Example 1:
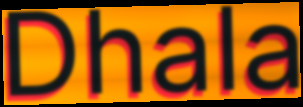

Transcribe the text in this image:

Dhala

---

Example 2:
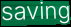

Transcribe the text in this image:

saving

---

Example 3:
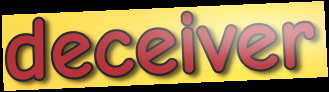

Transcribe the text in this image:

deceiver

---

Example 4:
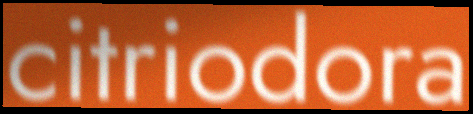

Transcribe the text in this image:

citriodora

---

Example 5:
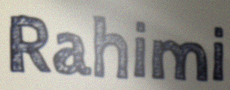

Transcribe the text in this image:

Rahimi